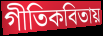
গীতিকবিতায়